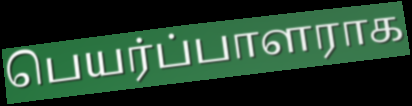
பெயர்ப்பாளராக